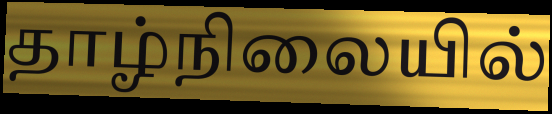
தாழ்நிலையில்